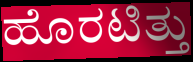
ಹೊರಟಿತ್ತು